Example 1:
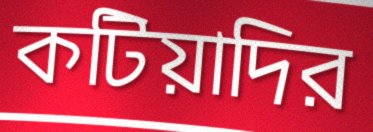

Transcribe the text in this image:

কটিয়াদির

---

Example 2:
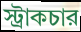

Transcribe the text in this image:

স্ট্রাকচার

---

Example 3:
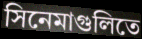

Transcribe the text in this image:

সিনেমাগুলিতে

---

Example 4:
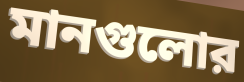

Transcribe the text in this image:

মানগুলোর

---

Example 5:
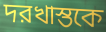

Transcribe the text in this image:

দরখাস্তকে